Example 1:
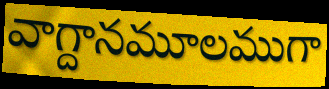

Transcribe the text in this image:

వాగ్దానమూలముగా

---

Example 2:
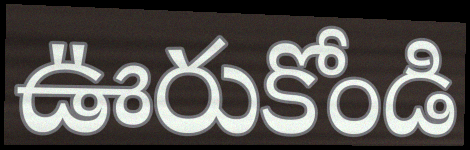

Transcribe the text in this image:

ఊరుకోండి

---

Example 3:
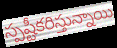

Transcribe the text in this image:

స్పష్టీకరిస్తున్నాయి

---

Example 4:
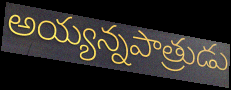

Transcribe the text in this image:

అయ్యన్నపాత్రుడు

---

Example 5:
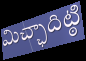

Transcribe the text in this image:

మిచ్ఛాదిట్ఠి